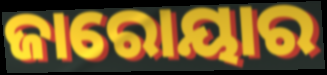
ଜାରୋୟାର